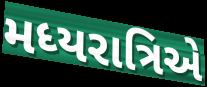
મધ્યરાત્રિએ